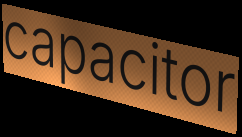
capacitor